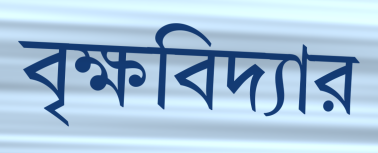
বৃক্ষবিদ্যার